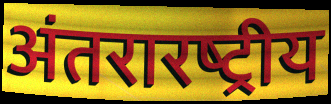
अंतरारष्ट्रीय